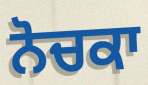
ਨੋਚਕਾ